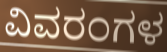
ವಿವರಂಗಳ